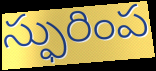
స్ఫురింప